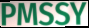
PMSSY